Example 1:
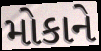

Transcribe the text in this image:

મોકાને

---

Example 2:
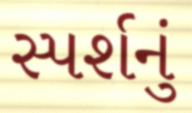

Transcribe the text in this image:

સ્પર્શનું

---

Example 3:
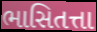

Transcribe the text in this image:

ભાસિતત્તા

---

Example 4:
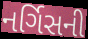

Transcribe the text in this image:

નર્ગિસની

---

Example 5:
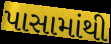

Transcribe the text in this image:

પાસામાંથી